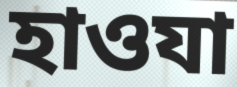
হাওযা